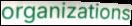
organizations